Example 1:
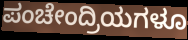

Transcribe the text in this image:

ಪಂಚೇಂದ್ರಿಯಗಳೂ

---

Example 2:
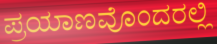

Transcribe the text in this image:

ಪ್ರಯಾಣವೊಂದರಲ್ಲಿ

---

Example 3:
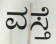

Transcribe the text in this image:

ವಸ್ತೆ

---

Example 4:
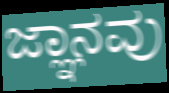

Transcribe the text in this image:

ಜ್ಞಾನವು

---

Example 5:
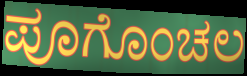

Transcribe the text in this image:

ಪೂಗೊಂಚಲ